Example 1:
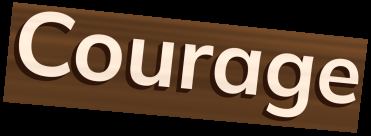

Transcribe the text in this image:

Courage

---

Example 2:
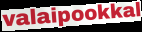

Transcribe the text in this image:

valaipookkal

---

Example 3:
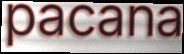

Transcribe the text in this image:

pacana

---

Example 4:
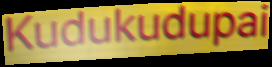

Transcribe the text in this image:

Kudukudupai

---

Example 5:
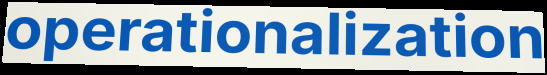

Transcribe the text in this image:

operationalization